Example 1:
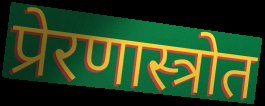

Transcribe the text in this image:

प्रेरणास्त्रोत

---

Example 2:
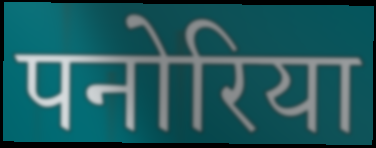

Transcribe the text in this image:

पनोरिया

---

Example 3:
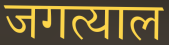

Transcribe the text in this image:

जगत्याल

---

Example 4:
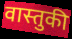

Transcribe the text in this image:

वास्तुकी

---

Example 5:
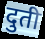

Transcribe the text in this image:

दुती